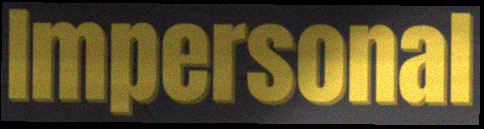
Impersonal